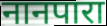
नानपारा